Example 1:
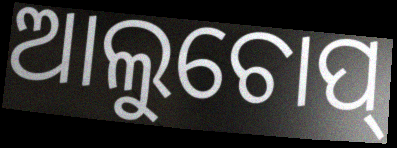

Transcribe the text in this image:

ଆଲୁଚୋପ୍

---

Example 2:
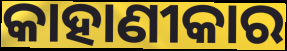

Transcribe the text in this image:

କାହାଣୀକାର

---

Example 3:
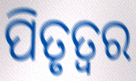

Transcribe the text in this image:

ପିତୃତ୍ୱର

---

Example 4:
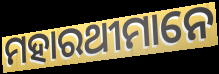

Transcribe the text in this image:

ମହାରଥୀମାନେ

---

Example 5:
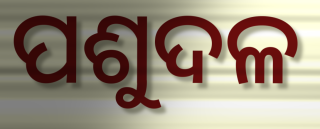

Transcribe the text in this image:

ପଶୁଦଳ